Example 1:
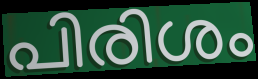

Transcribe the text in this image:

പിരിശം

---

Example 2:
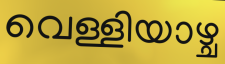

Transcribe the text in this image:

വെള്ളിയാഴ്ച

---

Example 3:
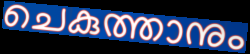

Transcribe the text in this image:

ചെകുത്താനും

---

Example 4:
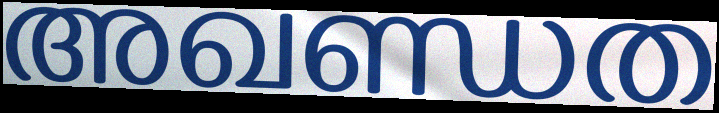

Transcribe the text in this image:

അഖണ്ഡത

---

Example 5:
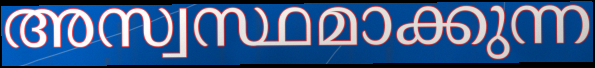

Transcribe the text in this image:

അസ്വസ്ഥമാക്കുന്ന